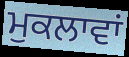
ਮੁਕਲਾਵਾਂ